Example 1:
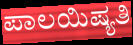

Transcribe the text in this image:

ಪಾಲಯಿಷ್ಯತಿ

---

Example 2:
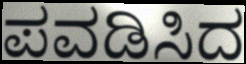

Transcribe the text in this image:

ಪವಡಿಸಿದ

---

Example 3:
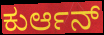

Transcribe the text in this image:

ಕುರ್ಆನ್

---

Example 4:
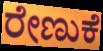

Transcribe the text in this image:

ರೇಣುಕೆ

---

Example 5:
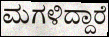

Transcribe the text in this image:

ಮಗಳಿದ್ದಾರೆ